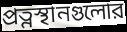
প্রত্নস্থানগুলোর